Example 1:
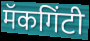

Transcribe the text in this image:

मॅकगिंटी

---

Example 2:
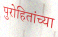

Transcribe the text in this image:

पुरोहितांच्या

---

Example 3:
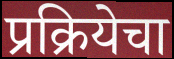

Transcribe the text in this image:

प्रक्रियेचा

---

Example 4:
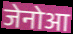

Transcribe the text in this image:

जेनोआ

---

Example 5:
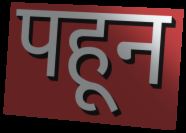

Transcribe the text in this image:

पहून